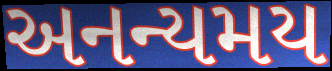
અનન્યમય